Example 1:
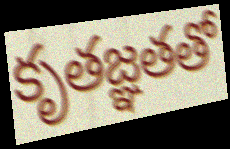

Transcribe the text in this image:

కృతజ్ఞతతో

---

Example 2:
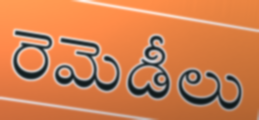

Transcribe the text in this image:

రెమెడీలు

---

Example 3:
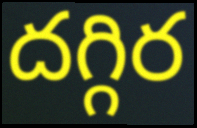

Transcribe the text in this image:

దగ్గిర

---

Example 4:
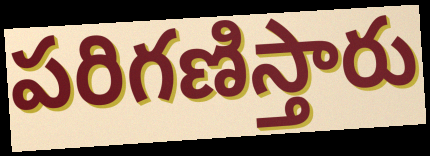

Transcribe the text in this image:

పరిగణిస్తారు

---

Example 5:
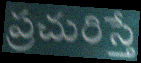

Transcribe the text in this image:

ప్రచురిస్తే